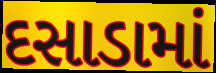
દસાડામાં